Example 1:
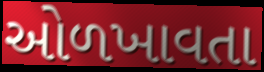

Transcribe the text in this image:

ઓળખાવતા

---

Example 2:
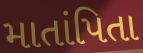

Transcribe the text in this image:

માતાંપિતા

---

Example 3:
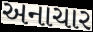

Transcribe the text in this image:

અનાચાર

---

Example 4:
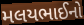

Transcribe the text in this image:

મલયભાઈનો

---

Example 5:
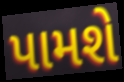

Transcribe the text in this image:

પામશે